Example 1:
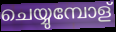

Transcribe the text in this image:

ചെയ്യുമ്പോള്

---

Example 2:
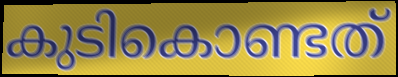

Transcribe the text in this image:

കുടികൊണ്ടത്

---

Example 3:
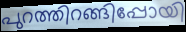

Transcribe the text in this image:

പുറത്തിറങ്ങിപ്പോയി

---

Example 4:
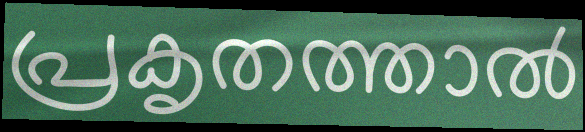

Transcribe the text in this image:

പ്രകൃതത്താൽ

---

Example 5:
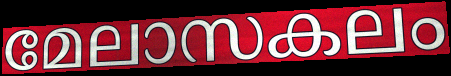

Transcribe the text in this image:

മേലാസകലം